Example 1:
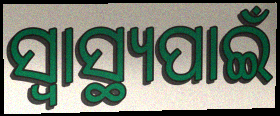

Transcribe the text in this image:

ସ୍ବାସ୍ଥ୍ୟପାଇଁ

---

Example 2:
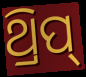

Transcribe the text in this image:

ଥ୍ରିପ୍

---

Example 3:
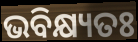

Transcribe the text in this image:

ଭବିକ୍ଷ୍ୟତଃ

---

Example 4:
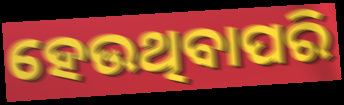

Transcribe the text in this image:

ହେଉଥିବାପରି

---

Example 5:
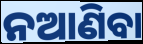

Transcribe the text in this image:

ନଆଣିବା